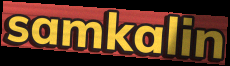
samkalin